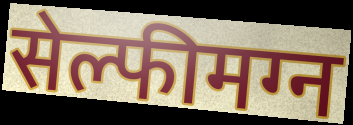
सेल्फीमग्न